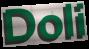
Doli